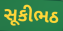
સૂકીભઠ